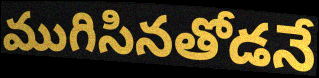
ముగిసినతోడనే